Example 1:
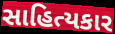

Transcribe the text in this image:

સાહિત્યકાર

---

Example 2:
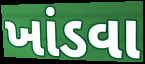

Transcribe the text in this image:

ખાંડવા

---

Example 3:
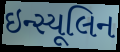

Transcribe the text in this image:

ઇન્સ્યૂલિન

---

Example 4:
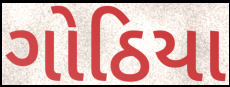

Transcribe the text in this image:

ગોઠિયા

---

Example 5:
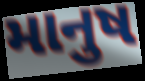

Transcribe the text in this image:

માનુષ